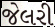
જેલરી